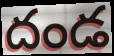
దండ